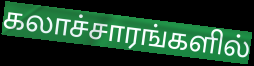
கலாச்சாரங்களில்